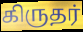
கிருதர்